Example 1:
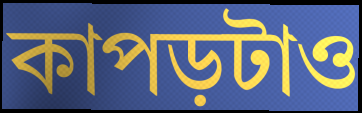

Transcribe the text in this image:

কাপড়টাও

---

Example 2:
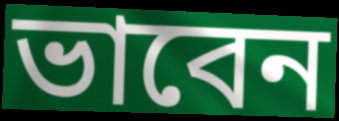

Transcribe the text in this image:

ভাবেন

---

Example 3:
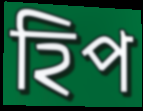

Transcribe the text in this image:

হিপ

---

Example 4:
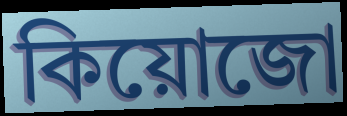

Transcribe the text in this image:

কিয়োজো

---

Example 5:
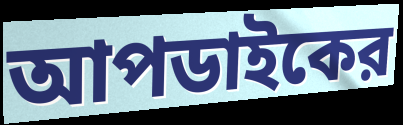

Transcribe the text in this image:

আপডাইকের